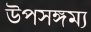
উপসঙ্গম্য